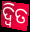
ଦ୍ବିତ